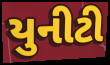
યુનીટી